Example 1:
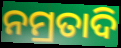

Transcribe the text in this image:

ନମ୍ରତାଦି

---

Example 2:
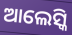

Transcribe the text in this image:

ଆଲେସ୍କି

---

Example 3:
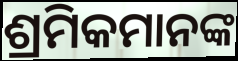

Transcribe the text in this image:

ଶ୍ରମିକମାନଙ୍କ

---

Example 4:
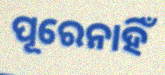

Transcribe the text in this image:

ପୂରେନାହିଁ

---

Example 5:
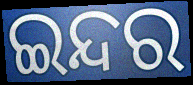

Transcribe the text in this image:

ଇନ୍ଦର